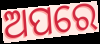
ଅପରେ